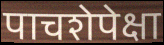
पाचशेपेक्षा